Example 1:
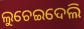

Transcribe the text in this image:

ଲୁଚେଇଦେଲି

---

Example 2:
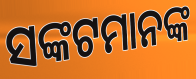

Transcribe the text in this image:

ସଙ୍କଟମାନଙ୍କ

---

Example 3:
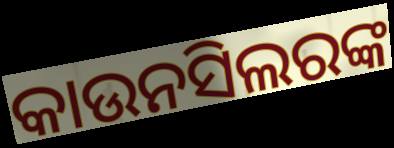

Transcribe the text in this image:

କାଉନସିଲରଙ୍କ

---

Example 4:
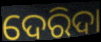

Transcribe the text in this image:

ଦେରିଦା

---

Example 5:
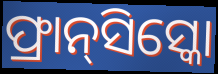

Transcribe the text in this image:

ଫ୍ରାନ୍‌ସିସ୍କୋ